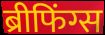
ब्रीफिंग्स